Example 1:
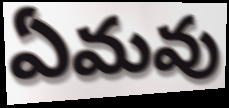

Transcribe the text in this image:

ఏమవు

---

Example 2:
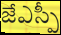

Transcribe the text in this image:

జేఎస్పీ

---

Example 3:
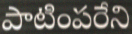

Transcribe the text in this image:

పాటింపరేని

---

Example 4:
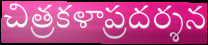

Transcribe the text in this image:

చిత్రకళాప్రదర్శన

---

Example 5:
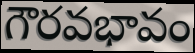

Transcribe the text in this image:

గౌరవభావం